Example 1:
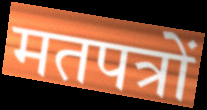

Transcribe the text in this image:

मतपत्रों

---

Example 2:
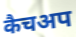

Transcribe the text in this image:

कैचअप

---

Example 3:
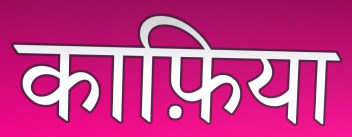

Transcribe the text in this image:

काफ़िया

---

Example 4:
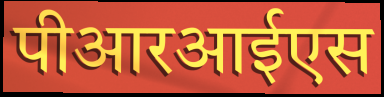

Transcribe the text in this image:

पीआरआईएस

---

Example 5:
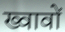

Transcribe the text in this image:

ख्वावों